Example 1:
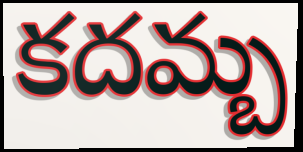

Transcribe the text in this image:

కదమ్బ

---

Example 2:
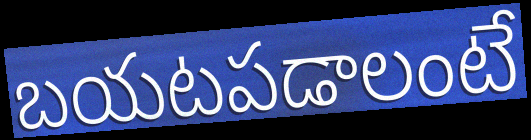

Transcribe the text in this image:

బయటపడాలంటే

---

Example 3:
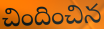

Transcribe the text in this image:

చిందించిన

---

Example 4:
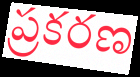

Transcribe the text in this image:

ప్రకరణ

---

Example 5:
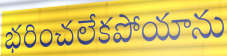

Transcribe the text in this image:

భరించలేకపోయాను